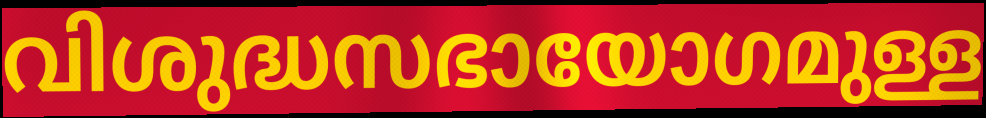
വിശുദ്ധസഭായോഗമുള്ള